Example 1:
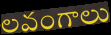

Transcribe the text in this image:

లవంగాలు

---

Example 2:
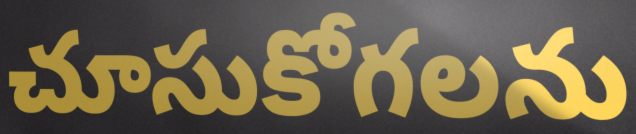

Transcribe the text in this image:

చూసుకోగలను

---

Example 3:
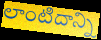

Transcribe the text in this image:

లాంటిదాన్ని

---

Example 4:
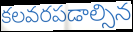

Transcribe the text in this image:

కలవరపడాల్సిన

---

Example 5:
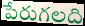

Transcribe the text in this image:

పేరుగలది